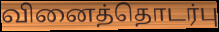
வினைத்தொடர்பு